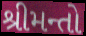
શ્રીમન્તો